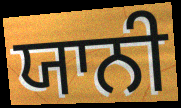
ਯਾਨੀ